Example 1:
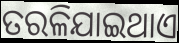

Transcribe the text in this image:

ତରଳିଯାଇଥାଏ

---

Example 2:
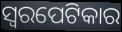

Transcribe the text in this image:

ସ୍ଵରପେଟିକାର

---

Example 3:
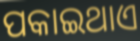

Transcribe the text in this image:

ପକାଇଥାଏ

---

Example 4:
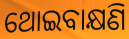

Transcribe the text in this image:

ଥୋଇବାକ୍ଷଣି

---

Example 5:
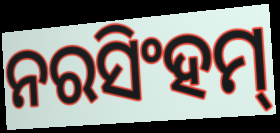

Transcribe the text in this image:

ନରସିଂହମ୍